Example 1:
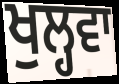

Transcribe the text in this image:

ਖੁਲ੍ਹਵਾ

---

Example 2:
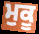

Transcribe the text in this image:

ਮੁਕੂ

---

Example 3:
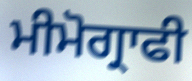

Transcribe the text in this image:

ਮੀਮੋਗ੍ਰਾਫੀ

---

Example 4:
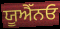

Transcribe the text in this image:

ਯੂਐੱਨਓ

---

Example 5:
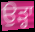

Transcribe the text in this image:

ਉੜ੍ਹਾ